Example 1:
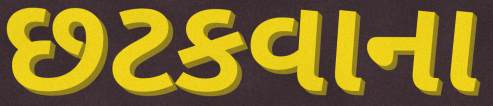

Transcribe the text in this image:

છટકવાના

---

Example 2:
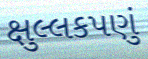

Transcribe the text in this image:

ક્ષુલ્લકપણું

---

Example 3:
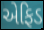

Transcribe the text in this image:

એફિડ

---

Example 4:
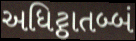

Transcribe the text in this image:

અધિટ્ઠાતબ્બં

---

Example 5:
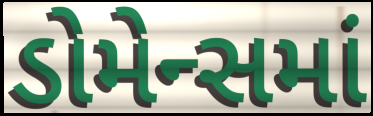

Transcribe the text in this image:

ડોમેન્સમાં